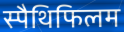
स्पैथिफिलम